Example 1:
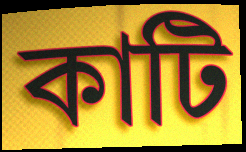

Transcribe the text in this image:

কাটি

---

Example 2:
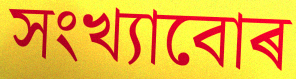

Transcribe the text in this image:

সংখ্যাবোৰ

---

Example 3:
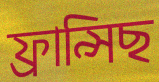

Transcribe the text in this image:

ফ্ৰান্সিছ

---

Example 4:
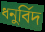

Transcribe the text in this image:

ধনুৰ্বিদ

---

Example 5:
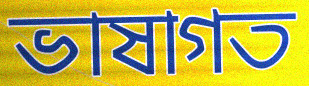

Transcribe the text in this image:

ভাষাগত